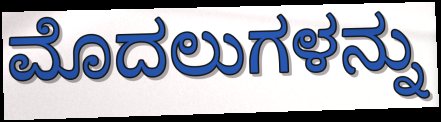
ಮೊದಲುಗಳನ್ನು